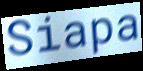
Siapa